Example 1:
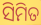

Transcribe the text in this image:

ସିମିତ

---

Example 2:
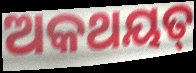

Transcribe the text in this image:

ଅକଥୟତ୍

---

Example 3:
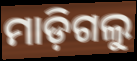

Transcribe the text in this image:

ମାଡ଼ିଗଲୁ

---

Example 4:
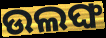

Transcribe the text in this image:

ଉଲଙ୍ଘ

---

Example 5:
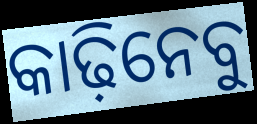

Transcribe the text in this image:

କାଢ଼ିନେବୁ